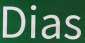
Dias